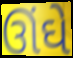
ઊંઘે